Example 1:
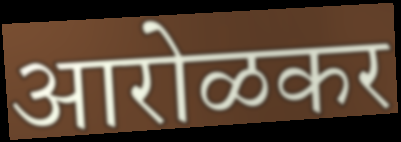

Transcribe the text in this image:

आरोळकर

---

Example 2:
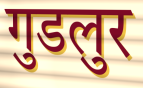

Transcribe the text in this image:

गुडलुर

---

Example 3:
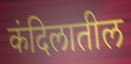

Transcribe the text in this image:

कंदिलातील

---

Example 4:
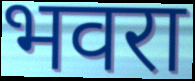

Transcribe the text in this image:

भवरा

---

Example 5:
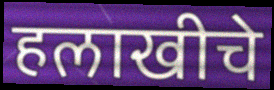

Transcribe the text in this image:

हलाखीचे